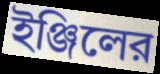
ইঞ্জিলের